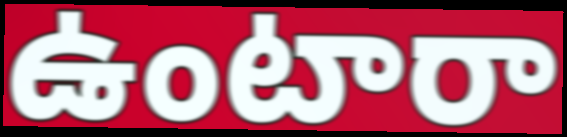
ఉంటారా